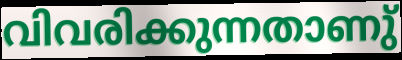
വിവരിക്കുന്നതാണു്